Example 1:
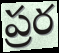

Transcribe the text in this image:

ప్రర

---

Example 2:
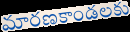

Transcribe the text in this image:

మారణకాండలకు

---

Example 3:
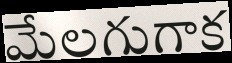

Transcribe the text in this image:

మేలగుగాక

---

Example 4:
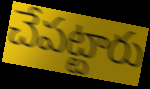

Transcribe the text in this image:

చేపట్టారు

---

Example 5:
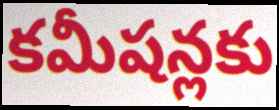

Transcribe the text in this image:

కమీషన్లకు